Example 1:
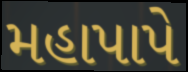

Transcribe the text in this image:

મહાપાપે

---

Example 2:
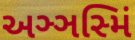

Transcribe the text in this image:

અઞ્ઞસ્મિં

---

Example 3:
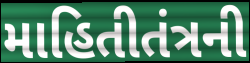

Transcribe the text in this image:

માહિતીતંત્રની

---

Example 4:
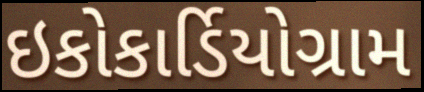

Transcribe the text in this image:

ઇકોકાર્ડિયોગ્રામ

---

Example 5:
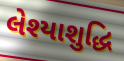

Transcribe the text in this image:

લેશ્યાશુદ્ધિ